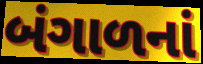
બંગાળનાં